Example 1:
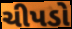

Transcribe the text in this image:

ચીપડો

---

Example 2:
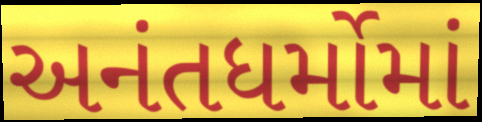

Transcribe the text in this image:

અનંતધર્મોમાં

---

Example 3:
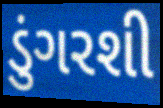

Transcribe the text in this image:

ડુંગરશી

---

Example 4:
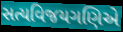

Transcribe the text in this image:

સત્યવિજયગણિએ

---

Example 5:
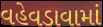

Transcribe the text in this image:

વહેવડાવામાં